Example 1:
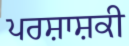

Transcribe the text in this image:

ਪਰਸ਼ਾਸ਼ਕੀ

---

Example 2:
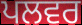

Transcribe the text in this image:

ਪਲਵਰ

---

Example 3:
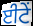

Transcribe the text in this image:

ਈਟੇਂ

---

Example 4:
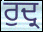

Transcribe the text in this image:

ਰੁਦ੍ਰ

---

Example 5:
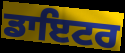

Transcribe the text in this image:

ਡਾਇਟਰ